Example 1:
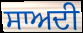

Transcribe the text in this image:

ਸਾਅਦੀ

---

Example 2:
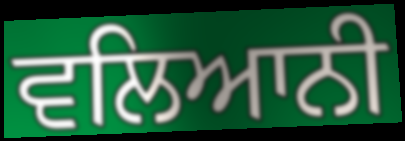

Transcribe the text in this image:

ਵਲਿਆਨੀ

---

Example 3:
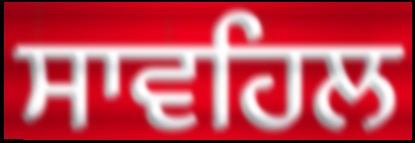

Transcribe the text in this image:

ਸਾਵਹਿਲ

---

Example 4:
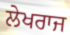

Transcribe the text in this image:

ਲੇਖਰਾਜ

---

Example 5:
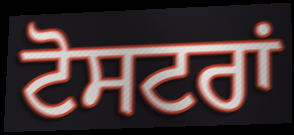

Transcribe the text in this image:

ਟੋਸਟਰਾਂ